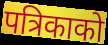
पत्रिकाको